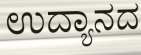
ಉದ್ಯಾನದ